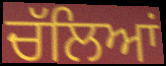
ਚੱਲਿਆਂ